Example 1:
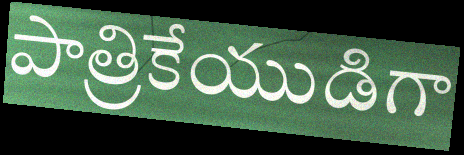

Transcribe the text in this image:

పాత్రికేయుడిగా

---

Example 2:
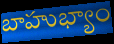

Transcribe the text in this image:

బాహుభ్యాం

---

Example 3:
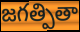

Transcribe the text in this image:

జగత్పితా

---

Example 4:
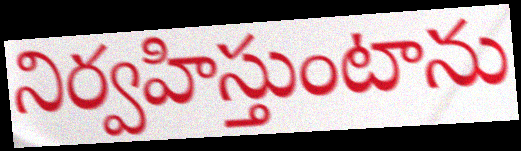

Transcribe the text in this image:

నిర్వహిస్తుంటాను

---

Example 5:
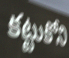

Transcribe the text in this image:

కట్టుకోని